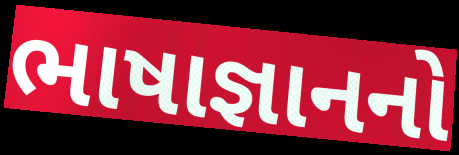
ભાષાજ્ઞાનનો